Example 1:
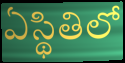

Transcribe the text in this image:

ఏస్థితిలో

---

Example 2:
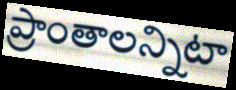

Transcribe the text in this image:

ప్రాంతాలన్నిటా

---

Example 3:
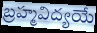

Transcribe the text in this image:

బ్రహ్మవిద్యయే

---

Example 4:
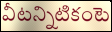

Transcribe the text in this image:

వీటన్నిటికంటె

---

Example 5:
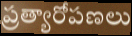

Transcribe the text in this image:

ప్రత్యారోపణలు